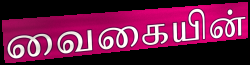
வைகையின்